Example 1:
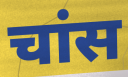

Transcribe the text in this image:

चांस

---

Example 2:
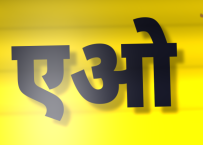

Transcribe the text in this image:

एओ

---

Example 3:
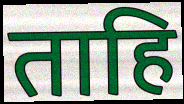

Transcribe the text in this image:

ताहि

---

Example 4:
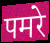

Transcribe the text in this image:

पमरे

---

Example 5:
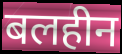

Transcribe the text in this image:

बलहीन